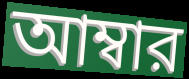
আম্বার